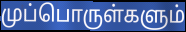
முப்பொருள்களும்